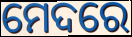
ମେଦରେ